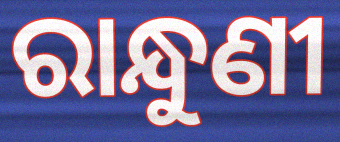
ରାନ୍ଧୁଣୀ